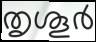
തൃശൂർ